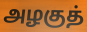
அழகுத்